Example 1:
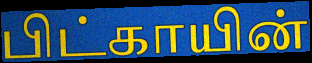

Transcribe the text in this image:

பிட்காயின்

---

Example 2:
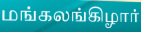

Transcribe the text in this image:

மங்கலங்கிழார்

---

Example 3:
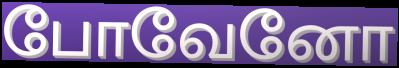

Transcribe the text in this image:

போவேனோ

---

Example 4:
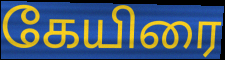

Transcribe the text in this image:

கேயிரை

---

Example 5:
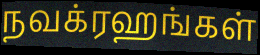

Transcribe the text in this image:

நவக்ரஹங்கள்